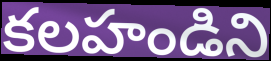
కలహండిని